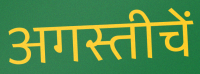
अगस्तीचें